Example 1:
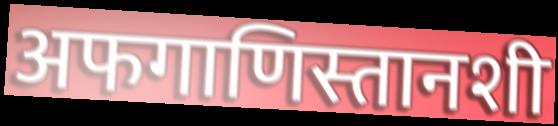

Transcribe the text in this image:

अफगाणिस्तानशी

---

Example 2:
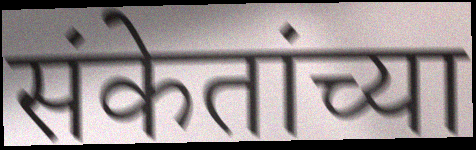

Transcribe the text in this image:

संकेतांच्या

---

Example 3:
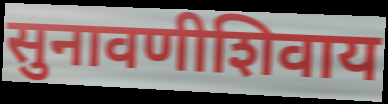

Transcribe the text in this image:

सुनावणीशिवाय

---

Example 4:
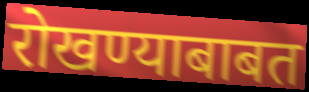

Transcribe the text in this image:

रोखण्याबाबत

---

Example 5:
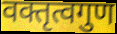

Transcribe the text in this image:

वक्तृत्वगुण